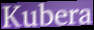
Kubera